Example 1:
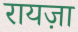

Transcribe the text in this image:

रायज़ा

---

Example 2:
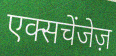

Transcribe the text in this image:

एक्सचेंजेज़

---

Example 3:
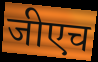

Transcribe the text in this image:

जीएच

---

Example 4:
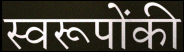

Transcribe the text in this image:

स्वरूपोंकी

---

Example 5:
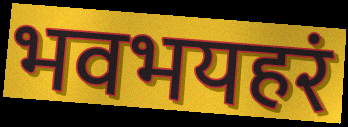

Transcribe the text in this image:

भवभयहरं